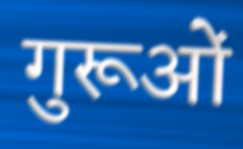
गुरूओं